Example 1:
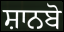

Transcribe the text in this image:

ਸ਼ਾਨਬੋ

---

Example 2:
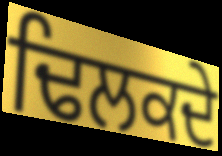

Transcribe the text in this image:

ਢਿਲਕਦੇ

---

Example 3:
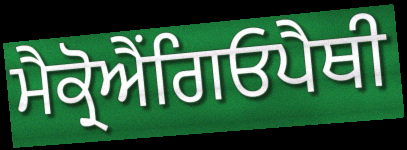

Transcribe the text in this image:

ਮੈਕ੍ਰੋਐਂਗਿਓਪੈਥੀ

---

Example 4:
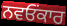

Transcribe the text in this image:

ਨਵਓਂਕਾਰ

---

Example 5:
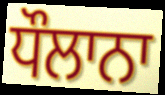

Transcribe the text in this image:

ਧੌਲਾਨਾ